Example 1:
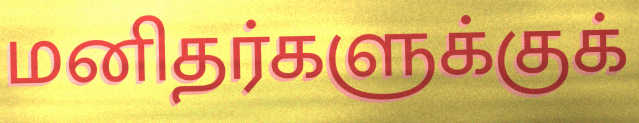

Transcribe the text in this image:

மனிதர்களுக்குக்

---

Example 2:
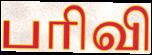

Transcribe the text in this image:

பரிவி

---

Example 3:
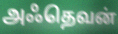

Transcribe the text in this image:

அஃதெவன்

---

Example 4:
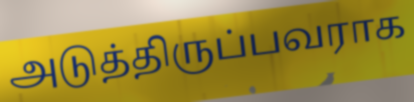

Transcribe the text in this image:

அடுத்திருப்பவராக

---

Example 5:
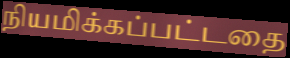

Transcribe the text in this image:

நியமிக்கப்பட்டதை